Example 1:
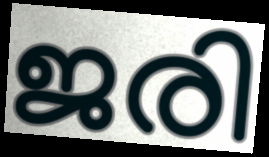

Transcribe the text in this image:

ജരി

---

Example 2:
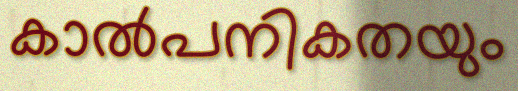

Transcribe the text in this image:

കാൽപനികതയും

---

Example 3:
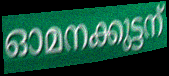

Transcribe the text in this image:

ഓമനക്കുട്ടന്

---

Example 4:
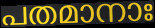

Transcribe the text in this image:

പതമാനാഃ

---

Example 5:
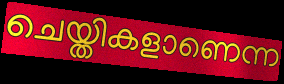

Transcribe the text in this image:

ചെയ്തികളാണെന്ന